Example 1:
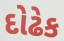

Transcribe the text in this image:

દોઢેક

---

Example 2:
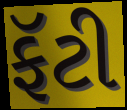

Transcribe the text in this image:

ફૅટી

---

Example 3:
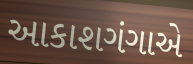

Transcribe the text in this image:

આકાશગંગાએ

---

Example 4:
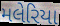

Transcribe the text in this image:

મલેરિયા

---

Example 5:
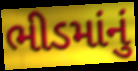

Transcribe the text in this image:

ભીડમાંનું